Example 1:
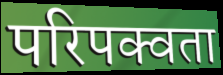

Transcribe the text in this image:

परिपक्‍वता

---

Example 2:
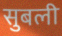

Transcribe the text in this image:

सुबली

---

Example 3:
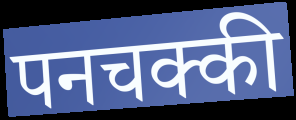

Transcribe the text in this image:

पनचक्की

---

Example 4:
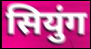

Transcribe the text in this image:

सियुंग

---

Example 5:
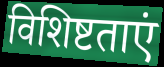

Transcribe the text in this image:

विशिष्टताएं